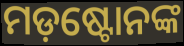
ମଡ଼ଷ୍ଟୋନଙ୍କ